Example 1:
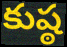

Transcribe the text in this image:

కుష్ఠ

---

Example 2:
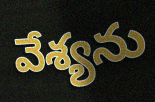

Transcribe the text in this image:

వేశ్యను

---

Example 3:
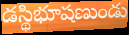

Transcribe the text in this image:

డస్థిభూషణుండు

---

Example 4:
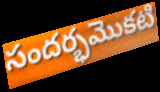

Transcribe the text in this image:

సందర్భమొకటి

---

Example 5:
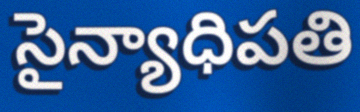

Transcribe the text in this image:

సైన్యాధిపతి